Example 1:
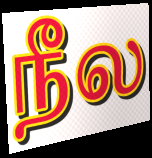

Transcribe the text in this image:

நீல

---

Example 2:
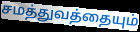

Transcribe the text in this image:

சமத்துவத்தையும்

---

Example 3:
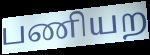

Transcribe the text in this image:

பணியற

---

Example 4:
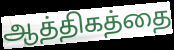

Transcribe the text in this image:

ஆத்திகத்தை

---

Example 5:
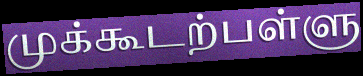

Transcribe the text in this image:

முக்கூடற்பள்ளு